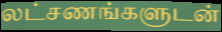
லட்சணங்களுடன்